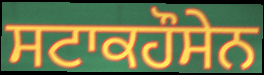
ਸਟਾਕਹੌਸੇਨ